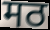
मठ